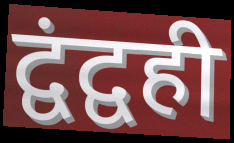
द्वंद्वही